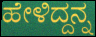
ಹೇಳಿದ್ದನ್ನ